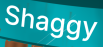
Shaggy